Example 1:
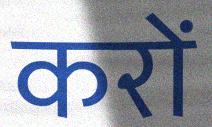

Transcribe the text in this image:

करों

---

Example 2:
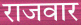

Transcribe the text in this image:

राजवार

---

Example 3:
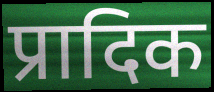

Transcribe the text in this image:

प्रादिक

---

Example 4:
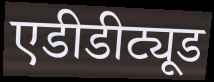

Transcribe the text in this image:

एडीडीट्यूड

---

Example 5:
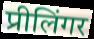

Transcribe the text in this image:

प्रीलिंगर